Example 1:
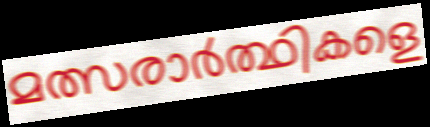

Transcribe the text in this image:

മത്സരാർത്ഥികളെ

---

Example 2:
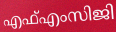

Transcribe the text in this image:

എഫ്എംസിജി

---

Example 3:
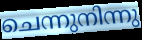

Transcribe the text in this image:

ചെന്നുനിന്നു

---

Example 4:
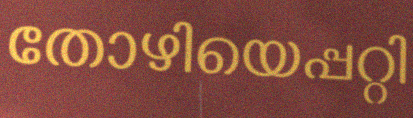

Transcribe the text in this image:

തോഴിയെപ്പറ്റി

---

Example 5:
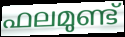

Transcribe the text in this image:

ഫലമുണ്ട്